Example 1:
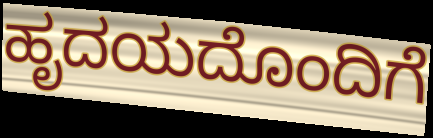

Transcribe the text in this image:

ಹೃದಯದೊಂದಿಗೆ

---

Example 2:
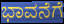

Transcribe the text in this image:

ಭಾವನೆಗೆ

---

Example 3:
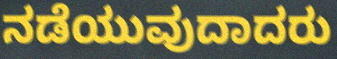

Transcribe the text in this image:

ನಡೆಯುವುದಾದರು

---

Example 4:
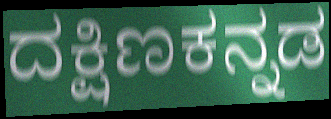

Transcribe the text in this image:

ದಕ್ಷಿಣಕನ್ನಡ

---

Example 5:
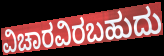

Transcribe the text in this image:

ವಿಚಾರವಿರಬಹುದು